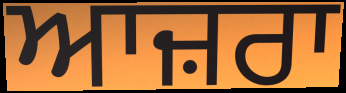
ਆਜ਼ਰਾ